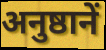
अनुष्ठानें